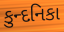
કુન્દનિકા